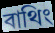
বাথিং